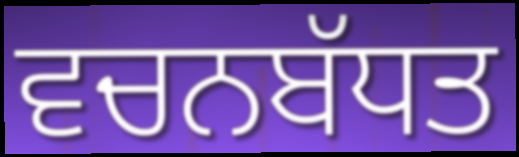
ਵਚਨਬੱਧਤ